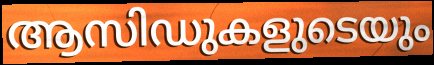
ആസിഡുകളുടെയും